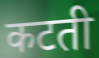
कटती